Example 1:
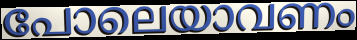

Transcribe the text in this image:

പോലെയാവണം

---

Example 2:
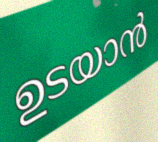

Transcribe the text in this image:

ഉടയാൻ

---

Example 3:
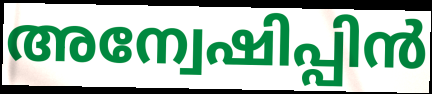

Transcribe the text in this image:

അന്വേഷിപ്പിൻ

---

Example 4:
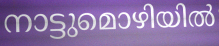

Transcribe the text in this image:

നാട്ടുമൊഴിയിൽ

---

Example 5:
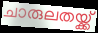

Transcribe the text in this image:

ചാരുലതയ്ക്ക്